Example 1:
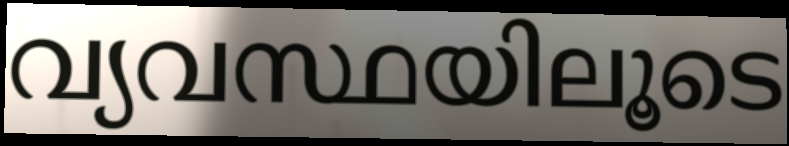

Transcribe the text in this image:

വ്യവസ്ഥയിലൂടെ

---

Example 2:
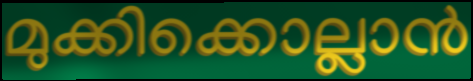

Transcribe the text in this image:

മുക്കിക്കൊല്ലാൻ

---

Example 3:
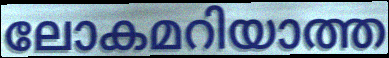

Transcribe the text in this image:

ലോകമറിയാത്ത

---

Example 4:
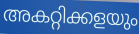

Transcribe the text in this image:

അകറ്റിക്കളയും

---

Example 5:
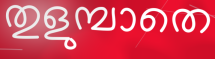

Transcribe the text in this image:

തുളുമ്പാതെ